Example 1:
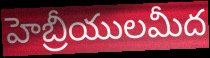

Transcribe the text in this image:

హెబ్రీయులమీద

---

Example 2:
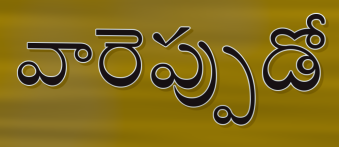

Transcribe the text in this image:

వారెప్పుడో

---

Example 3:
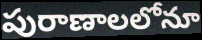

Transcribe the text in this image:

పురాణాలలోనూ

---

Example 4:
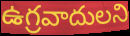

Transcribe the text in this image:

ఉగ్రవాదులని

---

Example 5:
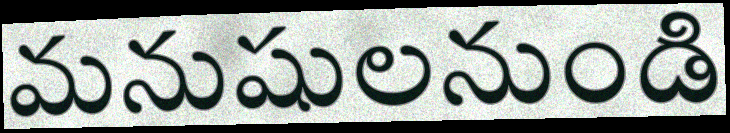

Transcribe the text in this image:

మనుషులనుండి